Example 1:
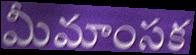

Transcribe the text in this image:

మీమాంసక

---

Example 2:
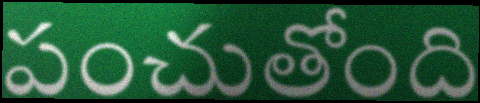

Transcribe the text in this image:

పంచుతోంది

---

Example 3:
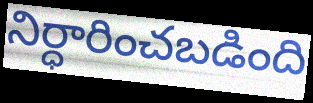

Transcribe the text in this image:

నిర్ధారించబడింది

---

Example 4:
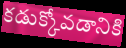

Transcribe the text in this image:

కడుక్కోవడానికి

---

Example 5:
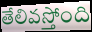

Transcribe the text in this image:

తేలివస్తోంది